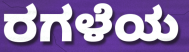
ರಗಳೆಯ